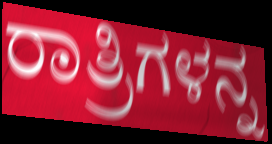
ರಾತ್ರಿಗಳನ್ನ